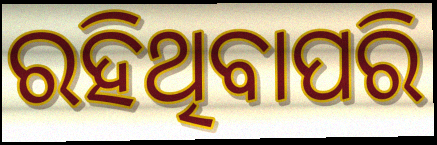
ରହିଥିବାପରି